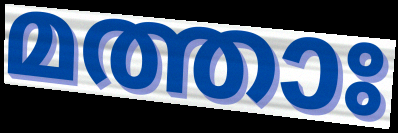
മത്താഃ